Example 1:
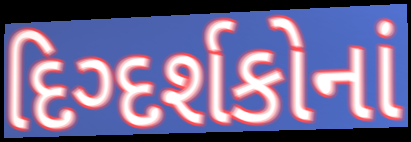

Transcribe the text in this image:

દિગ્દર્શકોનાં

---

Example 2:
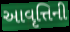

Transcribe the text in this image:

આવૃત્તિની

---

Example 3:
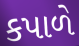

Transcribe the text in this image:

કપાળે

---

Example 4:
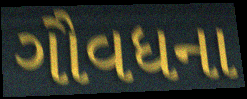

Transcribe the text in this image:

ગૌવધના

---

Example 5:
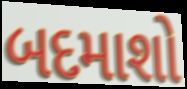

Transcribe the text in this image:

બદમાશો